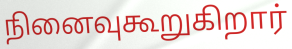
நினைவுகூறுகிறார்